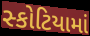
સ્કોટિયામાં